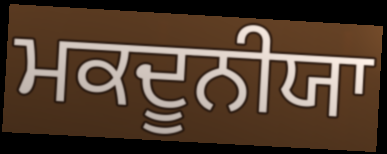
ਮਕਦੂਨੀਯਾ